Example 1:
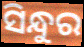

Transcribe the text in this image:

ସିନ୍ଧୁର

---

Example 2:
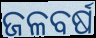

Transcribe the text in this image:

ଜଳବର୍ଷ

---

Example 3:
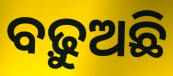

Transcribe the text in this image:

ବଢ଼ୁଅଛି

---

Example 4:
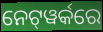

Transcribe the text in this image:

ନେଟ୍‍ୱର୍କରେ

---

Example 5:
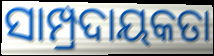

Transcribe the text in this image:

ସାମ୍ପ୍ରଦାୟକତା